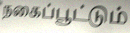
நகைப்பூட்டும்